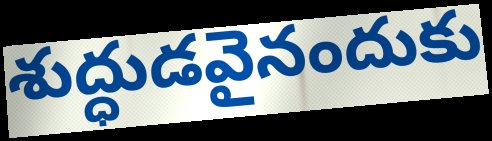
శుద్ధుడవైనందుకు